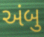
અંબુ